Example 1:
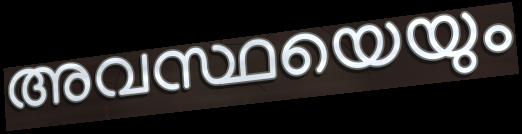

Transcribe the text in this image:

അവസ്ഥയെയും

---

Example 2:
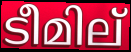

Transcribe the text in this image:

ടീമില്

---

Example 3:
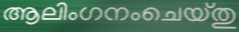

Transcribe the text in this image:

ആലിംഗനംചെയ്തു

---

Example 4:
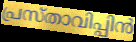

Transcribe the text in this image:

പ്രസ്താവിപ്പിൻ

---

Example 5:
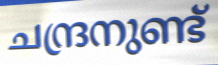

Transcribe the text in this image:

ചന്ദ്രനുണ്ട്